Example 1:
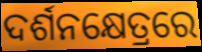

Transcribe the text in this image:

ଦର୍ଶନକ୍ଷେତ୍ରରେ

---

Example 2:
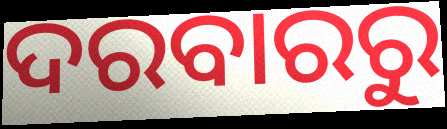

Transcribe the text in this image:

ଦରବାରରୁ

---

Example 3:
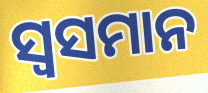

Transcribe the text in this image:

ସ୍ୱସମାନ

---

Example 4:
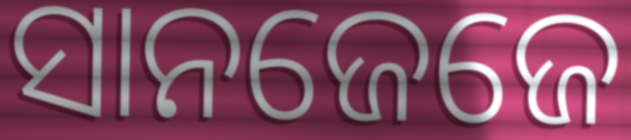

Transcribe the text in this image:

ସାନଜେଜେ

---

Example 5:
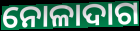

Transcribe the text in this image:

ନୋଳାଦାଗ